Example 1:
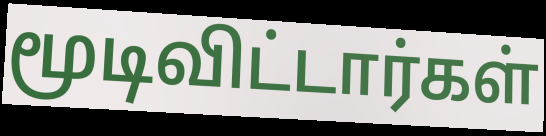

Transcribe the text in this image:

மூடிவிட்டார்கள்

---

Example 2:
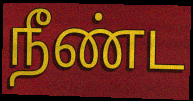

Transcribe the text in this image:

நீண்ட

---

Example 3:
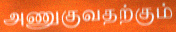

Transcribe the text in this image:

அணுகுவதற்கும்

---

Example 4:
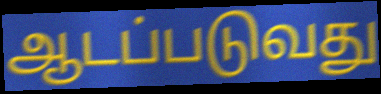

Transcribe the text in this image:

ஆடப்படுவது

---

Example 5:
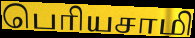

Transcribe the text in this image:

பெரியசாமி